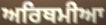
ਅਰਿਥਮੀਆ